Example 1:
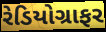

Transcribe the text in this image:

રેડિયોગ્રાફર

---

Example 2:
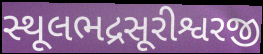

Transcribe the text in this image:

સ્થૂલભદ્રસૂરીશ્વરજી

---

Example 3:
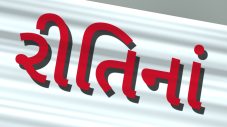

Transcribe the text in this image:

રીતિનાં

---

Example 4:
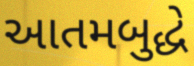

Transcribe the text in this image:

આતમબુદ્ધે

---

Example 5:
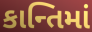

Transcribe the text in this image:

કાન્તિમાં